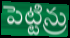
పెట్టిన్రు